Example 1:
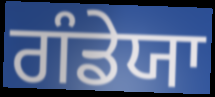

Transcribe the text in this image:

ਗੰਡੇਯਾ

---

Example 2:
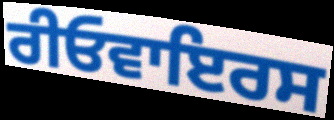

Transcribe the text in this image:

ਰੀਓਵਾਇਰਸ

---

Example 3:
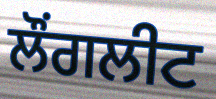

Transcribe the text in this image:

ਲੌਂਗਲੀਟ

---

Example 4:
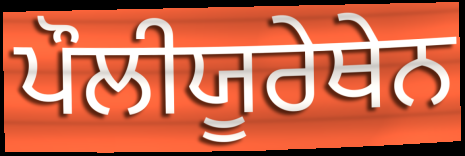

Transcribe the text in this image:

ਪੌਲੀਯੂਰੇਥੇਨ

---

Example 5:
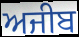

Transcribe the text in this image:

ਅਜੀਬ